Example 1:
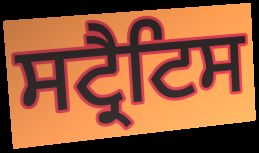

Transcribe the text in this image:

ਸਟ੍ਰੈਟਿਸ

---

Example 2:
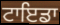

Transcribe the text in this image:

ਟਾਇਡਾ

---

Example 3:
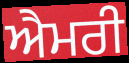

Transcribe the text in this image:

ਐਮਰੀ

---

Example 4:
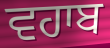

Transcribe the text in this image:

ਵਹਾਬ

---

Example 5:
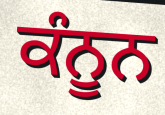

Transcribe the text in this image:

ਕੰਨੂਨ